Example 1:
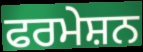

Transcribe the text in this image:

ਫਰਮੇਸ਼ਨ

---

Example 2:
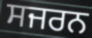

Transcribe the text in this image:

ਸਜਰਨ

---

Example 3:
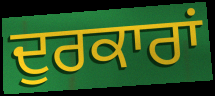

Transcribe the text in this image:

ਦੁਰਕਾਰਾਂ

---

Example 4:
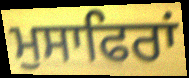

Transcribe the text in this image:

ਮੁਸਾਫਿਰਾਂ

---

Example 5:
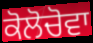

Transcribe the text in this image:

ਕੋਲੋਚੋਵਾ